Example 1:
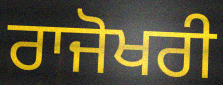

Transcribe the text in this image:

ਰਾਜੋਖਰੀ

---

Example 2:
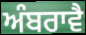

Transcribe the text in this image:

ਅੰਬਰਾਵੈ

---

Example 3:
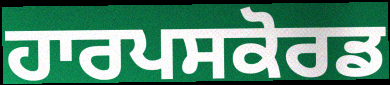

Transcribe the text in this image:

ਹਾਰਪਸਕੋਰਡ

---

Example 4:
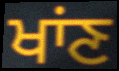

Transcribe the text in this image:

ਖਾਂਣ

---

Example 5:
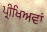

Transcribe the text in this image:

ਪ੍ਰੀਖਿਅਵਾਂ